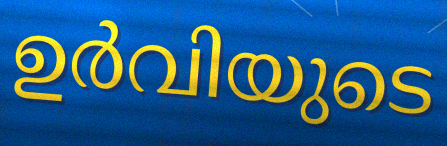
ഉർവിയുടെ